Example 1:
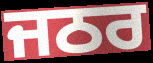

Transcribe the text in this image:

ਜਠਰ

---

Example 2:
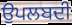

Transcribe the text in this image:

ਉਪਲਬਦੀ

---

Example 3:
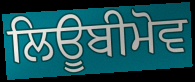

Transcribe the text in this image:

ਲਿਊਬੀਮੋਵ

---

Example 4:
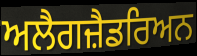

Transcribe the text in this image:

ਅਲੈਗਜ਼ੈਡਰਿਅਨ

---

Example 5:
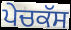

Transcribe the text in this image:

ਪੇਚਕੱਸ